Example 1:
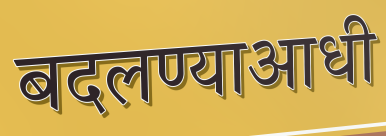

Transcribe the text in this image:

बदलण्याआधी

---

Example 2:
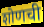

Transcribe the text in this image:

शोणची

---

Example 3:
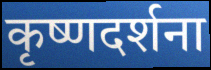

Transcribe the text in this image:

कृष्णदर्शना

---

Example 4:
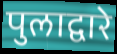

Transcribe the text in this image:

पुलाद्वारे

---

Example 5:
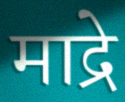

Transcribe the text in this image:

माद्रे